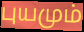
புயமும்